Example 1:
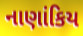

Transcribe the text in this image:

નાણાંકિય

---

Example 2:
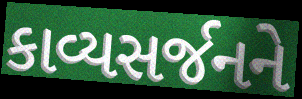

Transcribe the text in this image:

કાવ્યસર્જનને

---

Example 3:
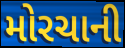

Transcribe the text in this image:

મોરચાની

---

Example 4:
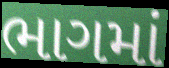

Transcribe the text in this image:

ભાગમાં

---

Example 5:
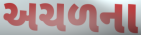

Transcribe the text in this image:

અચળના